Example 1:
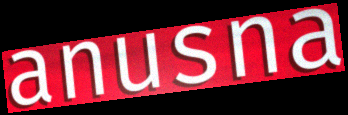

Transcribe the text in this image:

anusna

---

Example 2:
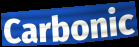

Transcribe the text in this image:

Carbonic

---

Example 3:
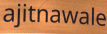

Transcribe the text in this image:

ajitnawale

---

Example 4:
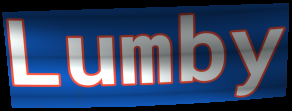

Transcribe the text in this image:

Lumby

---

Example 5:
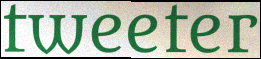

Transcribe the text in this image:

tweeter